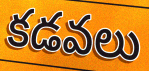
కడవలు